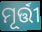
ମୂର୍ତ୍ତୀ